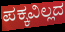
ಪಕ್ಕವಿಲ್ಲದ